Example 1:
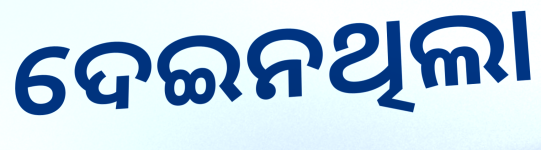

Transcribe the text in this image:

ଦେଇନଥିଲା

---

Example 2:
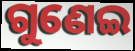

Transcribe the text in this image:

ଗୁଣେଇ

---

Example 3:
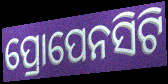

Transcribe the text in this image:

ପ୍ରୋପେନସିଟି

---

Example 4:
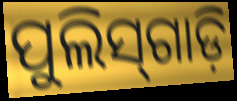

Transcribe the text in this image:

ପୁଲିସ୍‌ଗାଡ଼ି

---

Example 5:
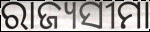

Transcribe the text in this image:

ରାଜ୍ୟସୀମା